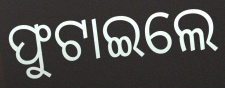
ଫୁଟାଇଲେ